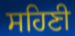
ਸਹਿਣੀ